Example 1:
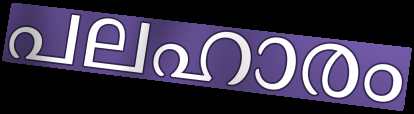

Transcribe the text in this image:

പലഹാരം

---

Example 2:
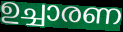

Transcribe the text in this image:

ഉച്ചാരണ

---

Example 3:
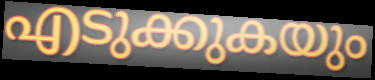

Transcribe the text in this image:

എടുക്കുകയും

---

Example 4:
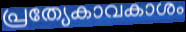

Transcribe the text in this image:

പ്രത്യേകാവകാശം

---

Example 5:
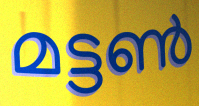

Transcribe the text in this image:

മട്ടൺ